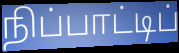
நிப்பாட்டிப்